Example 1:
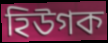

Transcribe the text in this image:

হিউগক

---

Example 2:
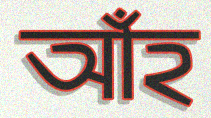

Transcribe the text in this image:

আঁহ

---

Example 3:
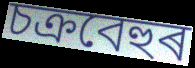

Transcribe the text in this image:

চক্ৰবেহুৰ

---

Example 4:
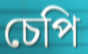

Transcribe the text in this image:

চেপি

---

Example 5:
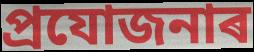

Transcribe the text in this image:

প্ৰযোজনাৰ